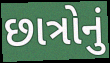
છાત્રોનું